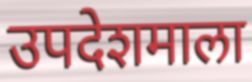
उपदेशमाला